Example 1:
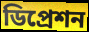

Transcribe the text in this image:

ডিপ্রেশন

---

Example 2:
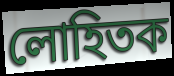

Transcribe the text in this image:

লোহিতক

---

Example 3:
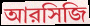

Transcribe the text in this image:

আরসিজি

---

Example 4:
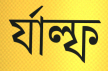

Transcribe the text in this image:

র্যাল্ফ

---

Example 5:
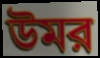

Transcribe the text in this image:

উমর